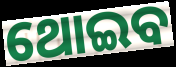
ଥୋଇବ